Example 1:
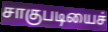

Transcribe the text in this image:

சாகுபடியைச்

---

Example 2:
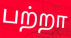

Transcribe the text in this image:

பற்றா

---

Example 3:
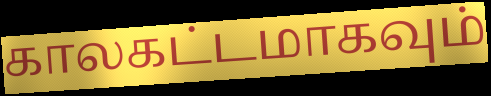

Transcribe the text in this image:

காலகட்டமாகவும்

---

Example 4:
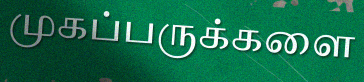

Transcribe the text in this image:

முகப்பருக்களை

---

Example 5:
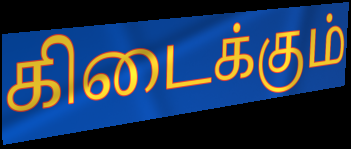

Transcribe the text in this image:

கிடைக்கும்